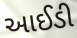
આઈડી